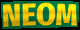
NEOM